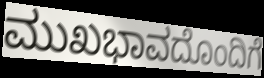
ಮುಖಭಾವದೊಂದಿಗೆ